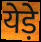
येड़े